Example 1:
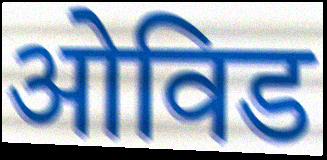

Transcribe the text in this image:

ओविड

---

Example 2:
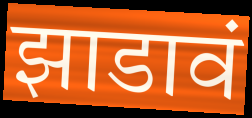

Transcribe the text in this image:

झाडावं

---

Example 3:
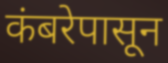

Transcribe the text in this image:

कंबरेपासून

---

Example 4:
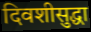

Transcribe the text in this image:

दिवशीसुद्धा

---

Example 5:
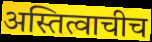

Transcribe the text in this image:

अस्तित्वाचीच